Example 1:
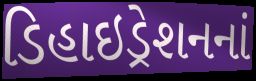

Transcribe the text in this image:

ડિહાઇડ્રેશનનાં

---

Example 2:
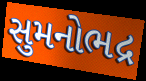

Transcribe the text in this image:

સુમનોભદ્ર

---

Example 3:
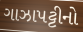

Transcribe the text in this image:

ગાઝાપટ્ટીનો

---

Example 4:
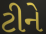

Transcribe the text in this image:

ટીને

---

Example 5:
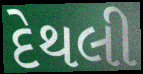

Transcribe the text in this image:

દેથલી